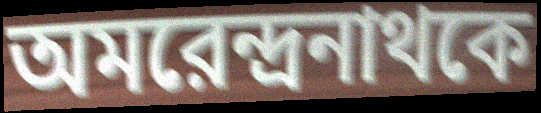
অমরেন্দ্রনাথকে